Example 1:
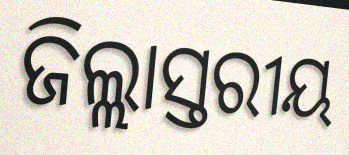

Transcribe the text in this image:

ଜିଲ୍ଲାସ୍ତରୀୟ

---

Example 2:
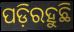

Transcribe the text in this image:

ପଡ଼ିରହୁଛି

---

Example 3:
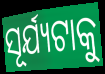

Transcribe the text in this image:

ସୂର୍ଯ୍ୟଟାକୁ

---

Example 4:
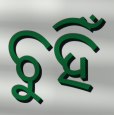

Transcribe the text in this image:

ଚୁହିଁ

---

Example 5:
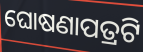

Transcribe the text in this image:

ଘୋଷଣାପତ୍ରଟି